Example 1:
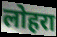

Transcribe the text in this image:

लोहरा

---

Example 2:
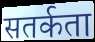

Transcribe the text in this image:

सतर्कता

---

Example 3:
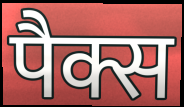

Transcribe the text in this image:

पैक्स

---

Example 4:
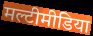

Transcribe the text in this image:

मल्टीमीडिया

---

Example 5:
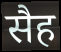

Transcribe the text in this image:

सैह